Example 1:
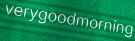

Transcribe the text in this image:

verygoodmorning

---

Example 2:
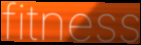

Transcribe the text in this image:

fitness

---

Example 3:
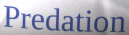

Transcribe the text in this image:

Predation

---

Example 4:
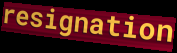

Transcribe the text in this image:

resignation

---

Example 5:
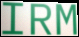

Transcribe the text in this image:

IRM